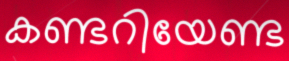
കണ്ടറിയേണ്ട